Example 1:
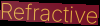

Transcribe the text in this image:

Refractive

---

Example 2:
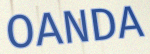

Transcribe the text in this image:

OANDA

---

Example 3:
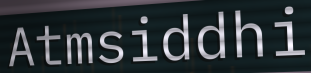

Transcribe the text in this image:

Atmsiddhi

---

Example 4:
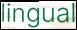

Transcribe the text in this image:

lingual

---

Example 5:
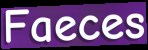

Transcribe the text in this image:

Faeces